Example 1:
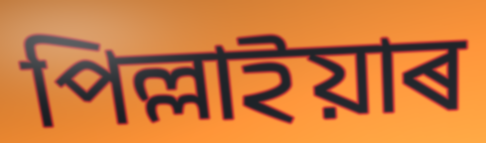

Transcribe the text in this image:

পিল্লাইয়াৰ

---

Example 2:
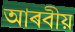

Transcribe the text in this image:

আৰবীয়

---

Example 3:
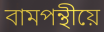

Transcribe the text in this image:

বামপন্থীয়ে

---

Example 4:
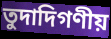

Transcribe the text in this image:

তুদাদিগণীয়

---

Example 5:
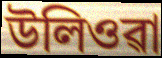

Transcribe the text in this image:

উলিওৱা